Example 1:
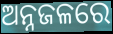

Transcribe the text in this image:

ଅନ୍ନଜଳରେ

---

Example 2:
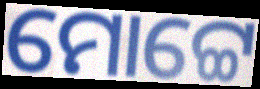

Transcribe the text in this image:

ମୋଟ୍ଟେ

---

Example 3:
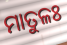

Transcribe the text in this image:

ମାତୁଳଃ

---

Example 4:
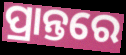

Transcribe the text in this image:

ପ୍ରାନ୍ତରେ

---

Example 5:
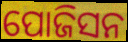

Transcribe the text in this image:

ପୋଜିସନ